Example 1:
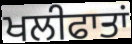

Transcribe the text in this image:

ਖਲੀਫਾਤਾਂ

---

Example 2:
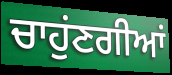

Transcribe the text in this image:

ਚਾਹੁਂਣਗੀਆਂ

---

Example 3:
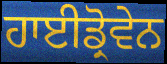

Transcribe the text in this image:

ਹਾਈਡ੍ਰੋਵੇਨ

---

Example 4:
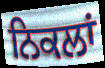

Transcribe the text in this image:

ਨਿਕਲਾਂ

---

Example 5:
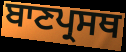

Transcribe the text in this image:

ਬਾਣਪ੍ਰਸਥ